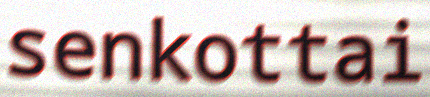
senkottai